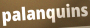
palanquins